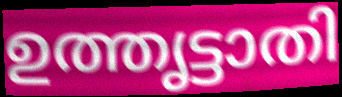
ഉത്തൃട്ടാതി